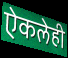
ऐकलेही